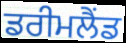
ਡਰੀਮਲੈਂਡ